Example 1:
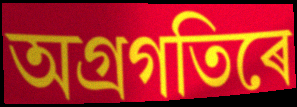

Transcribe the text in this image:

অগ্ৰগতিৰে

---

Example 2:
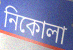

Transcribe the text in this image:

নিকোলা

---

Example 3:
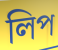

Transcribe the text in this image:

লিপ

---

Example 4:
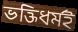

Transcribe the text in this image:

ভক্তিধৰ্মই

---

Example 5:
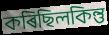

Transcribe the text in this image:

কৰিছিলকিন্তু